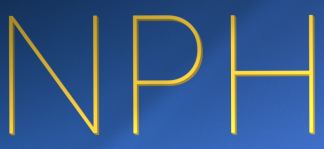
NPH